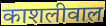
काशलीवाल